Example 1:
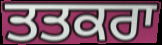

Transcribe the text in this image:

ਤਤਕਰਾ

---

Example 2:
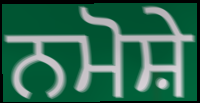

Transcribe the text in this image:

ਨਮੋਸ਼ੇ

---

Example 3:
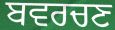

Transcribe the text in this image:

ਬਵਰਚਣ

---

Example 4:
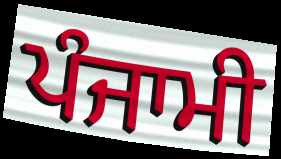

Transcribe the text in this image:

ਪੰਜਾਮੀ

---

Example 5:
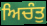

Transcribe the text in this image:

ਅਿਚੰਤੁ